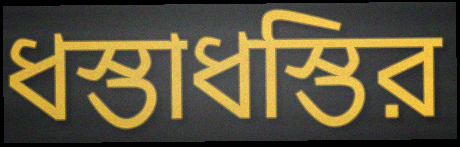
ধস্তাধস্তির